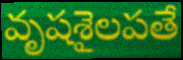
వృషశైలపతే